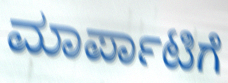
ಮಾರ್ಪಾಟಿಗೆ